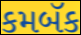
કમબૅક